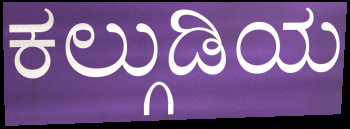
ಕಲ್ಗುಡಿಯ